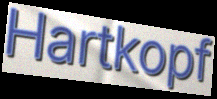
Hartkopf